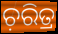
ଚ଼ରିତ୍ର